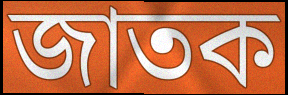
জাতক